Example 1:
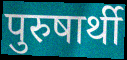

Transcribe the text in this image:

पुरुषार्थी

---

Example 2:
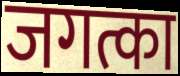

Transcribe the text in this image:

जगत्का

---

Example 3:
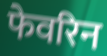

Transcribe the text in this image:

फेवरिन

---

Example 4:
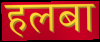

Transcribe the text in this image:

हलबा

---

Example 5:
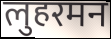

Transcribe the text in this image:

लुहरमन